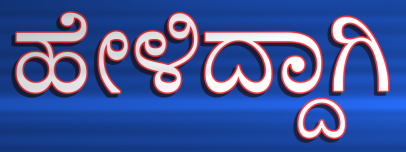
ಹೇಳಿದ್ದಾಗಿ